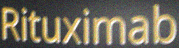
Rituximab